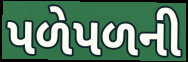
પળેપળની